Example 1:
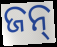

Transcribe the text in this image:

ଜନ୍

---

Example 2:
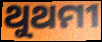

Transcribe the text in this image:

ଥୁଥମୀ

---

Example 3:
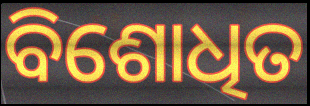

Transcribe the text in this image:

ବିଶୋଧିତ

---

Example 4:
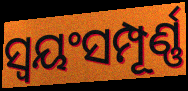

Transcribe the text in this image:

ସ୍ୱୟଂସମ୍ପୂର୍ଣ୍ଣ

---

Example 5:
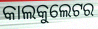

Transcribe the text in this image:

କାଲକୁଲେଟର